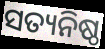
ସତ୍ୟନିଷ୍ଠ